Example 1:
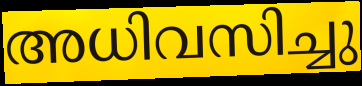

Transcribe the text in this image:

അധിവസിച്ചു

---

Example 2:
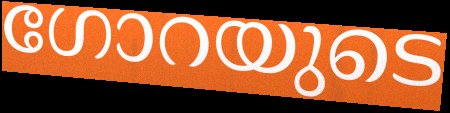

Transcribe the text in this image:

ഗോറയുടെ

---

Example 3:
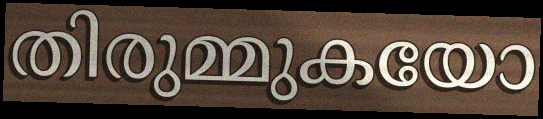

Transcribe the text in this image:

തിരുമ്മുകയോ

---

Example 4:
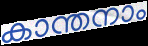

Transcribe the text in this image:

കാന്തനാം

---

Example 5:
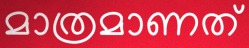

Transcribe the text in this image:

മാത്രമാണത്